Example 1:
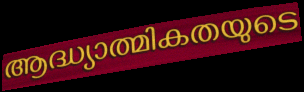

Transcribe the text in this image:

ആദ്ധ്യാത്മികതയുടെ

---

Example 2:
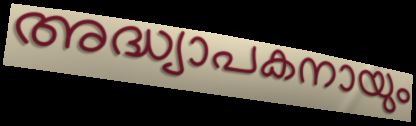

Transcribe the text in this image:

അദ്ധ്യാപകനായും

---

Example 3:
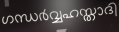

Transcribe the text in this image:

ഗന്ധർവ്വഹസ്താദി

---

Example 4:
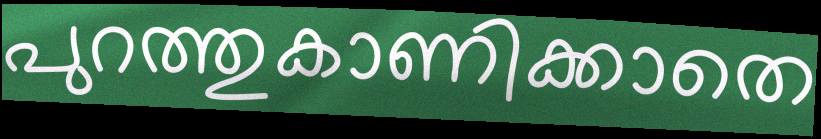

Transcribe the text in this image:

പുറത്തുകാണിക്കാതെ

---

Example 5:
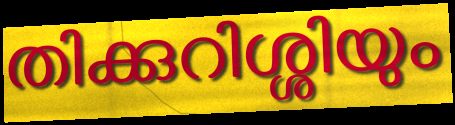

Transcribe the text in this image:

തിക്കുറിശ്ശിയും